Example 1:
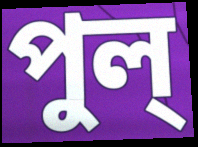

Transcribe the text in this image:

পুল্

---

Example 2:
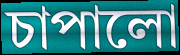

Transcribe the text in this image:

চাপালো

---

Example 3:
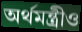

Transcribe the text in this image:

অর্থমন্ত্রীও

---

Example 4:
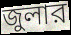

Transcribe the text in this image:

জুলার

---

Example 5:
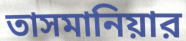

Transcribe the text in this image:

তাসমানিয়ার